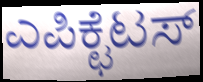
ಎಪಿಕ್ಟೆಟಸ್